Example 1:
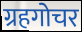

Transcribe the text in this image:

ग्रहगोचर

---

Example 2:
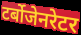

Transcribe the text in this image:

टर्बोजेनरेटर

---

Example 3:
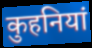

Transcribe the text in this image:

कुहनियां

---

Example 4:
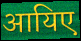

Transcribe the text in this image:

आयिए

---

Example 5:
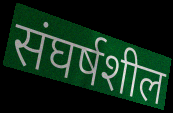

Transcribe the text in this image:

संघर्षशील